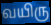
வயிரு